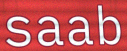
saab